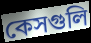
কেসগুলি